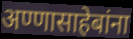
अण्णासाहेबांना